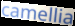
camellia